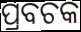
ପ୍ରବଚକ